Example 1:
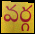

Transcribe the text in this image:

వర్గ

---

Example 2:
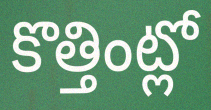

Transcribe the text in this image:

కొత్తింట్లో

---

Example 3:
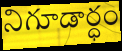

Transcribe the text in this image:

నిగూడార్ధం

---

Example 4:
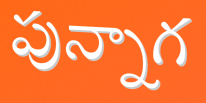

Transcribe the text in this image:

పున్నాగ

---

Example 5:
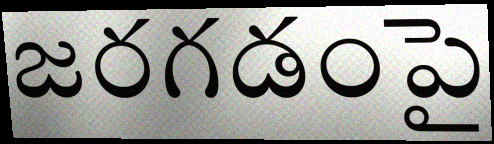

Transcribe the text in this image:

జరగడంపై